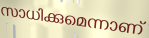
സാധിക്കുമെന്നാണ്